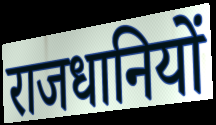
राजधानियों